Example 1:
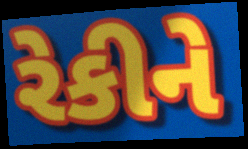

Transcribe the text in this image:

રેકીને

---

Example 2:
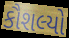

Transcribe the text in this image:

કૌશલ્યો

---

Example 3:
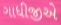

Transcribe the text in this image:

ગાધીજીએ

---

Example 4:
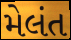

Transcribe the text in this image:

મેલંત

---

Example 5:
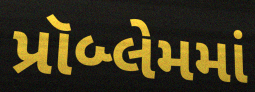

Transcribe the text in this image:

પ્રૉબ્લેમમાં